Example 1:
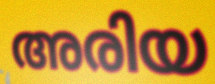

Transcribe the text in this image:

അരിയ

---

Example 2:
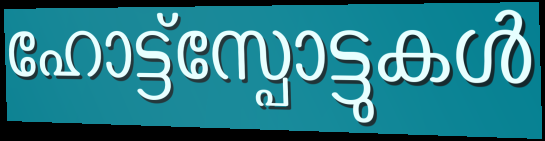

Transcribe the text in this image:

ഹോട്ട്സ്പോട്ടുകൾ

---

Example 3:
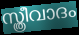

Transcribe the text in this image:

സ്ത്രീവാദം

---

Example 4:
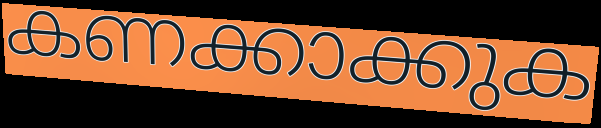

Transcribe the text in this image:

കണക്കാക്കുക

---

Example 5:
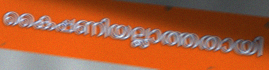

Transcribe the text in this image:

കൈപ്പണിയല്ലാത്തതായി